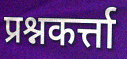
प्रश्नकर्त्ता